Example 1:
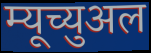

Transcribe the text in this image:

म्यूच्युअल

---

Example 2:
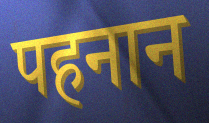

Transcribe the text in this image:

पहनान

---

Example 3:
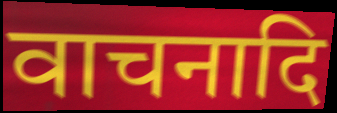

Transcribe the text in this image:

वाचनादि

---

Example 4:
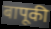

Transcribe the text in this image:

बापूकी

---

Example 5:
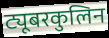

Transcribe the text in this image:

ट्यूबरकुलिन